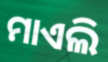
ମାଏଲି